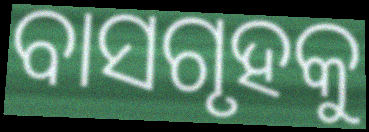
ବାସଗୃହକୁ